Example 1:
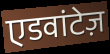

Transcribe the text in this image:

एडवांटेज़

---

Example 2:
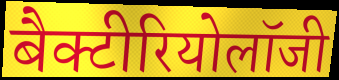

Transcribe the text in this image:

बैक्टीरियोलॉजी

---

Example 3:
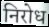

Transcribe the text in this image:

निरोध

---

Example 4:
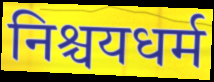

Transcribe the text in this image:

निश्चयधर्म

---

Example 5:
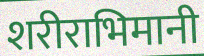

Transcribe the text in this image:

शरीराभिमानी